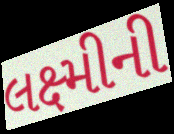
લક્ષ્મીની